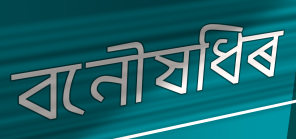
বনৌষধিৰ